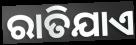
ରାତିଯାଏ